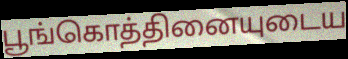
பூங்கொத்தினையுடைய